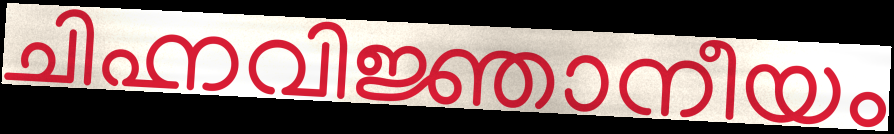
ചിഹ്നവിജ്ഞാനീയം